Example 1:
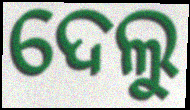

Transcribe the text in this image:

ଦେଲୁ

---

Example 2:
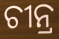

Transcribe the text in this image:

ଚୀନ୍ର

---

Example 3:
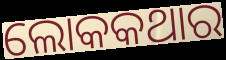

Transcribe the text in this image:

ଲୋକକଥାର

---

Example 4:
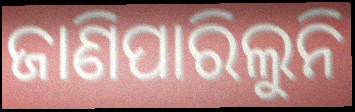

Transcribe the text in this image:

ଜାଣିପାରିଲୁନି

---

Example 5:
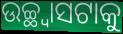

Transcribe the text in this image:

ଉଚ୍ଛ୍ୱାସଟାକୁ